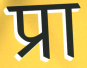
प्रा